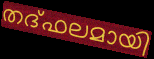
തദ്ഫലമായി